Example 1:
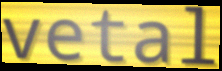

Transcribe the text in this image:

vetal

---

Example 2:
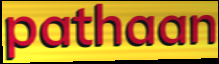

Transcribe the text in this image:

pathaan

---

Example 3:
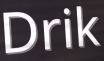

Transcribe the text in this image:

Drik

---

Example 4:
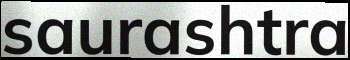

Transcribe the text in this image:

saurashtra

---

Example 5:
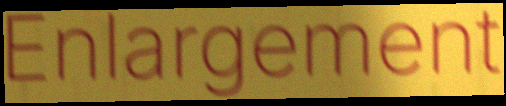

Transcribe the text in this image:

Enlargement